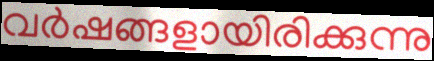
വർഷങ്ങളായിരിക്കുന്നു